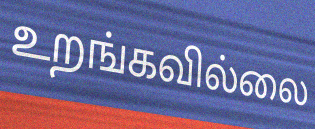
உறங்கவில்லை